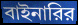
বাইনারির